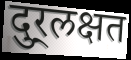
दुर्लक्षत